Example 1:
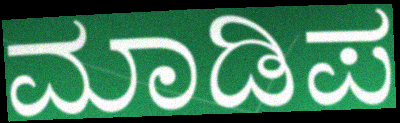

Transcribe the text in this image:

ಮಾಡಿಪ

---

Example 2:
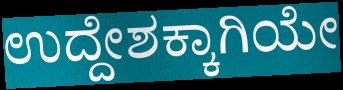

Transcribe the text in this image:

ಉದ್ದೇಶಕ್ಕಾಗಿಯೇ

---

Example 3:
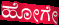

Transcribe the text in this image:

ಹೋಗೇ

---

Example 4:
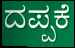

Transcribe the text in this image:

ದಪ್ಪಕೆ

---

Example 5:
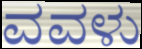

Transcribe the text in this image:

ವವಳು